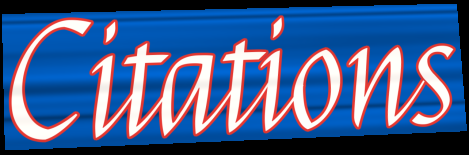
Citations